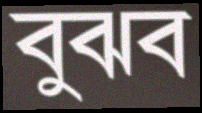
বুঝব